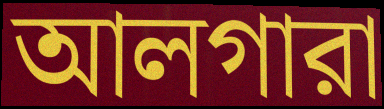
আলগারা